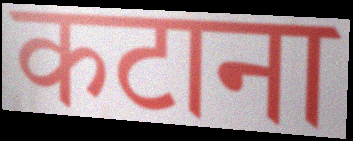
कटाना